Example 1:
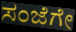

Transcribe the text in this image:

ಸಂಜೆಗೇ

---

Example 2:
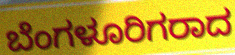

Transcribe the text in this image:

ಬೆಂಗಳೂರಿಗರಾದ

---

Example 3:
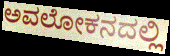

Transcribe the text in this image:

ಅವಲೋಕನದಲ್ಲಿ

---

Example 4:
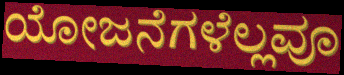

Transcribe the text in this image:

ಯೋಜನೆಗಳೆಲ್ಲವೂ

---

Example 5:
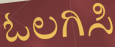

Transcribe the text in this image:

ಓಲಗಿಸಿ